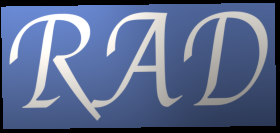
RAD